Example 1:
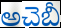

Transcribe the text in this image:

అచెబీ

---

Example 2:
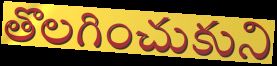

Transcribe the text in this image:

తొలగించుకుని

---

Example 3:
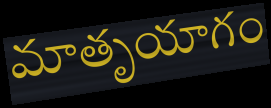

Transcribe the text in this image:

మాతృయాగం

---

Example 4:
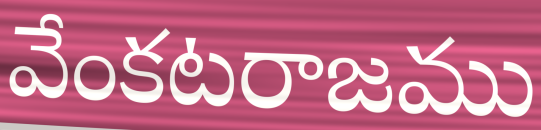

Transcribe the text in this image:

వేంకటరాజము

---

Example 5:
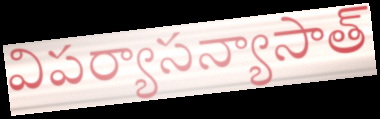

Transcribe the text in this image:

విపర్యాసన్యాసాత్